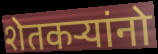
शेतकऱ्यांनो